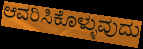
ಆವರಿಸಿಕೊಳ್ಳುವುದು